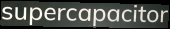
supercapacitor